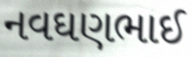
નવઘણભાઈ